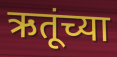
ऋतूंच्या